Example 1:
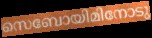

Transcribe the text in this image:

സെബോയിമിനോടു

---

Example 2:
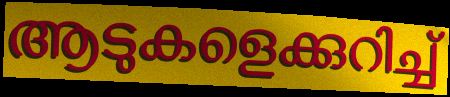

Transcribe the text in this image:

ആടുകളെക്കുറിച്ച്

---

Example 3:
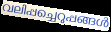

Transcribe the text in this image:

വലിപ്പച്ചെറുപ്പങ്ങൾ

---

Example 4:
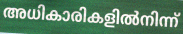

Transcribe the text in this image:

അധികാരികളിൽനിന്ന്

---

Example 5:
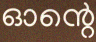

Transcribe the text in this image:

ഓന്റെ